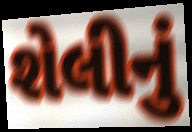
શેલીનું